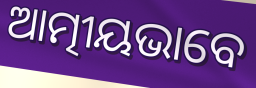
ଆତ୍ମୀୟଭାବେ